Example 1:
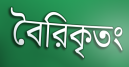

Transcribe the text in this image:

বৈরিকৃতং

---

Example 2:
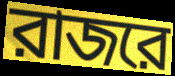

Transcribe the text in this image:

রাজরে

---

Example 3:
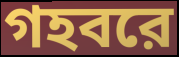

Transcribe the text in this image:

গহবরে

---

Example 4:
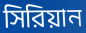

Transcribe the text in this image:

সিরিয়ান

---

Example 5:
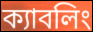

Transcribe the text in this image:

ক্যাবলিং